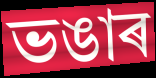
ভঙাৰ